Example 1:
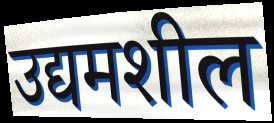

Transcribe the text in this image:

उद्यमशील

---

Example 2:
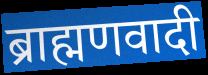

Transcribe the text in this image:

ब्राह्मणवादी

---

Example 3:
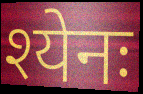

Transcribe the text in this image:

श्येनः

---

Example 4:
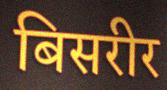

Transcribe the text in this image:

बिसरीर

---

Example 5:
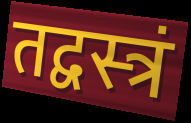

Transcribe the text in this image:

तद्वस्त्रं